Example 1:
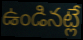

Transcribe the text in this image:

ఉండినట్లే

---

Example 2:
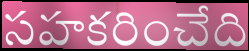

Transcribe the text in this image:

సహకరించేది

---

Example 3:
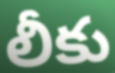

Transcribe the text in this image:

లీకు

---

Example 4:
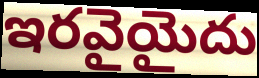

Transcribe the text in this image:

ఇరవైయైదు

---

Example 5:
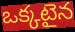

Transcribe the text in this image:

ఒక్కటైన